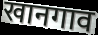
खानगाव